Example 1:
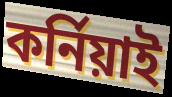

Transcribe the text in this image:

কর্নিয়াই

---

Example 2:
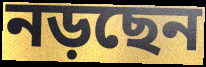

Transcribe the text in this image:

নড়ছেন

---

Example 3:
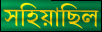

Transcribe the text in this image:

সহিয়াছিল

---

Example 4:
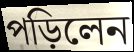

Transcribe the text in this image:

পড়িলেন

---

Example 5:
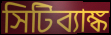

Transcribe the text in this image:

সিটিব্যাঙ্ক